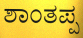
ಶಾಂತಪ್ಪ